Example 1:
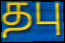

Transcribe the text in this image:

தபு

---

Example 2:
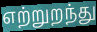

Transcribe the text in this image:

எற்றுறந்து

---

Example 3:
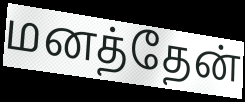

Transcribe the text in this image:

மனத்தேன்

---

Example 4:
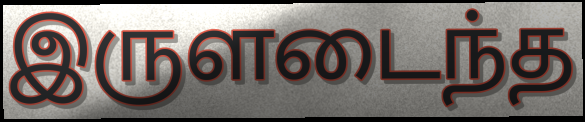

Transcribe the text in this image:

இருளடைந்த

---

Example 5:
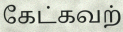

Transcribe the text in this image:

கேட்கவற்